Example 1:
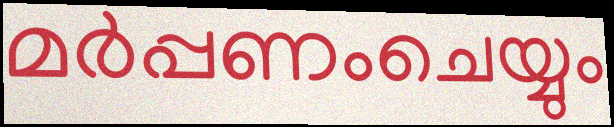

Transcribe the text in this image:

മർപ്പണംചെയ്യും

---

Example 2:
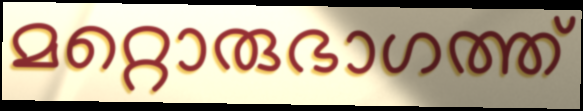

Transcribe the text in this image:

മറ്റൊരുഭാഗത്ത്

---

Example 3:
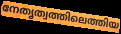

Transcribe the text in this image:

നേതൃത്വത്തിലെത്തിയ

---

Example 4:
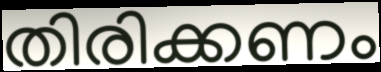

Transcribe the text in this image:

തിരിക്കണം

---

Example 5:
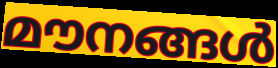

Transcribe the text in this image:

മൗനങ്ങൾ